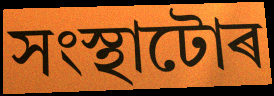
সংস্থাটোৰ